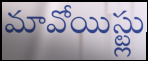
మావోయిస్ట్లు